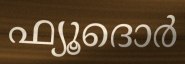
ഫ്യൂദൊർ